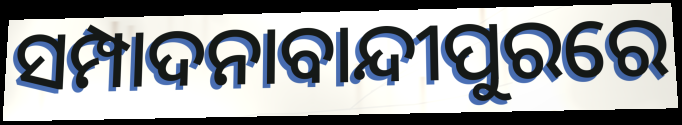
ସମ୍ପାଦନାବାନ୍ଦୀପୁରରେ